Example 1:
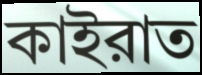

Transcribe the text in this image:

কাইরাত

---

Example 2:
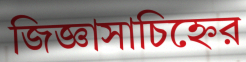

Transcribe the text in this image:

জিজ্ঞাসাচিহ্নের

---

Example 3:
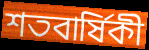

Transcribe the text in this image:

শতবার্ষিকী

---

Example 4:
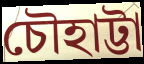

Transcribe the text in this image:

চৌহাট্টা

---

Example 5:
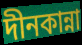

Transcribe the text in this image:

দীনকান্না